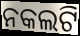
ନକଲଟି